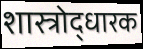
शास्त्रोद्धारक